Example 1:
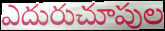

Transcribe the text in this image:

ఎదురుచూపుల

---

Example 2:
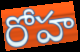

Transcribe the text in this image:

రోహ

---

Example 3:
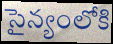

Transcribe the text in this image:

సైన్యంలోకి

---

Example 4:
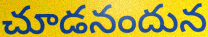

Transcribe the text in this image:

చూడనందున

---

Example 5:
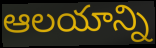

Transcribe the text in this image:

ఆలయాన్ని